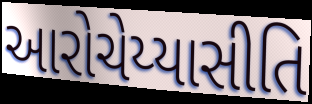
આરોચેય્યાસીતિ